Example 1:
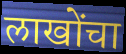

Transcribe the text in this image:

लाखोंचा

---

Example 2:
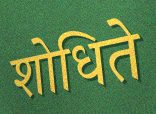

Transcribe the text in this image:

शोधिते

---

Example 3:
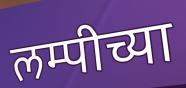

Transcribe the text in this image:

लम्पीच्या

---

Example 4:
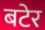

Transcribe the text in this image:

बटेर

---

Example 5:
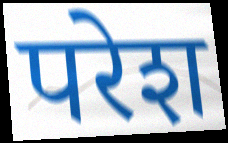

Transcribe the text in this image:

परेश